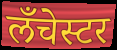
लँचेस्टर